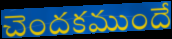
చెందకముందే